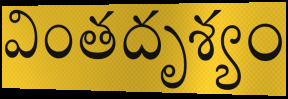
వింతదృశ్యం